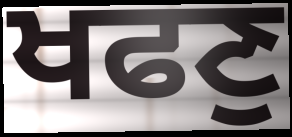
ਖਫਣੁ